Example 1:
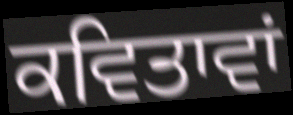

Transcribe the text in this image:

ਕਵਿਤਾਵਾਂ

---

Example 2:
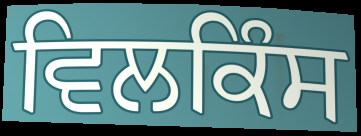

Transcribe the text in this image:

ਵਿਲਕਿੰਸ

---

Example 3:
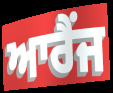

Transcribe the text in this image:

ਆਰੈਂਜ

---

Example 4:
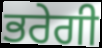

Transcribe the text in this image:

ਭਰੇਗੀ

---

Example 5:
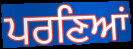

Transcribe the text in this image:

ਪਰਣਿਆਂ